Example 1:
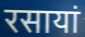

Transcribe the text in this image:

रसायां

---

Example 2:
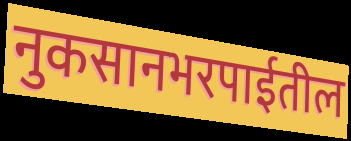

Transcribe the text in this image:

नुकसानभरपाईतील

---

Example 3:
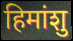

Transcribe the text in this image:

हिमांशु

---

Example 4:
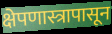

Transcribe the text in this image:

क्षेपणास्त्रापासून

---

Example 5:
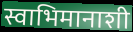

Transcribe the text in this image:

स्वाभिमानाशी